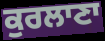
ਕੁਰਲਾਣਾ